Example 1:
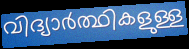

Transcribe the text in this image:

വിദ്യാർത്ഥികളുള്ള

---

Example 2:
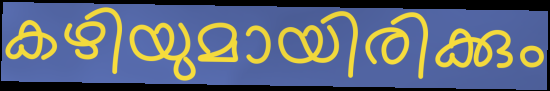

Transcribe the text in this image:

കഴിയുമായിരിക്കും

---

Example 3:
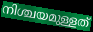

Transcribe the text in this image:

നിശ്ചയമുള്ളത്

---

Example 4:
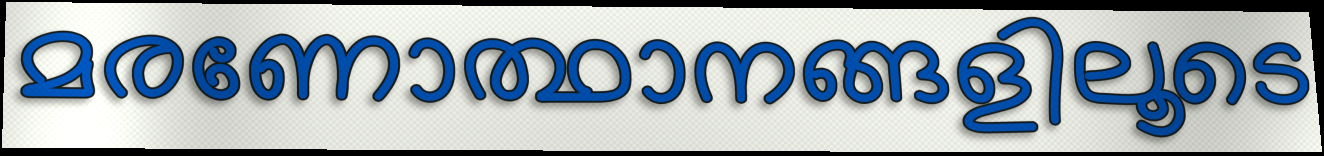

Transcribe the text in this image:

മരണോത്ഥാനങ്ങളിലൂടെ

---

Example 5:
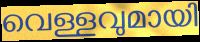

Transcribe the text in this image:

വെള്ളവുമായി